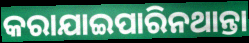
କରାଯାଇପାରିନଥାନ୍ତା